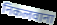
निकलवाना